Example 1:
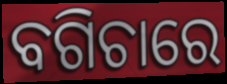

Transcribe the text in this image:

ବଗିଚାରେ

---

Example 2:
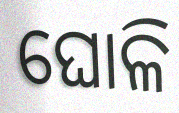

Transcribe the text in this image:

ଘୋଳି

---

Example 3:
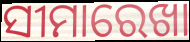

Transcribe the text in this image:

ସୀମାରେଖା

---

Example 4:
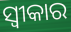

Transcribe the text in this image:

ସ୍ୱୀକାର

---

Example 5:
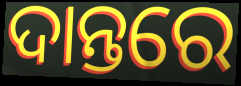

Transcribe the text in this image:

ଦାନ୍ତରେ